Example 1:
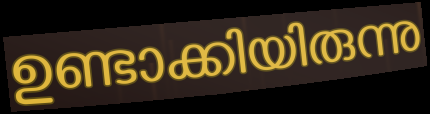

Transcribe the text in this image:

ഉണ്ടാക്കിയിരുന്നു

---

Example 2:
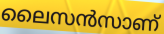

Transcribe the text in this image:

ലൈസൻസാണ്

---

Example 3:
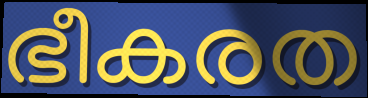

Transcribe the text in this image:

ഭീകരത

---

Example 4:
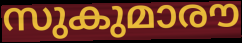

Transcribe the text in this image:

സുകുമാരൗ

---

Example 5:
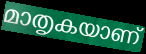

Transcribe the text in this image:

മാതൃകയാണ്